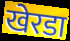
खेरडा